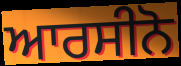
ਆਰਸੀਨੋ